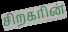
சிறகரின்